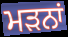
ਮੜਨਾਂ